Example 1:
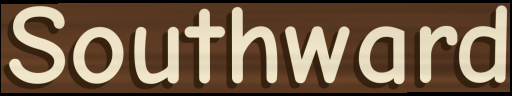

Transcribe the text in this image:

Southward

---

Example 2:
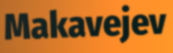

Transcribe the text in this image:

Makavejev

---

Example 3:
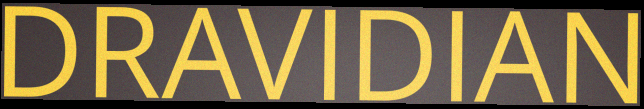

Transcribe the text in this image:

DRAVIDIAN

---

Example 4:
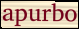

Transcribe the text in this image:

apurbo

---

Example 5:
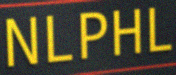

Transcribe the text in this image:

NLPHL